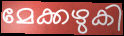
മേക്കഴുകി